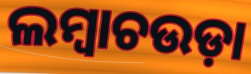
ଲମ୍ବାଚଉଡ଼ା